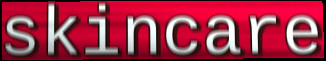
skincare